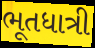
ભૂતધાત્રી